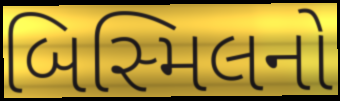
બિસ્મિલનો